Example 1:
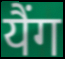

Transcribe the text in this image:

यैंग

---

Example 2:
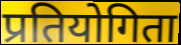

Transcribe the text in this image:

प्रतियोगिता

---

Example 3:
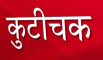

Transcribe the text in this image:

कुटीचक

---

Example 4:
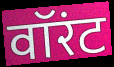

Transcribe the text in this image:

वॉरंट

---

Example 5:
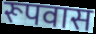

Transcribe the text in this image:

रूपवास